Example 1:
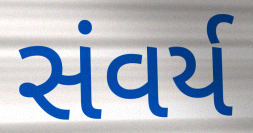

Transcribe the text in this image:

સંવર્ય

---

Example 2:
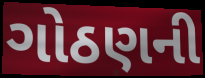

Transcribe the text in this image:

ગોઠણની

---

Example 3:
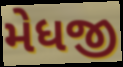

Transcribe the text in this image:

મેધજી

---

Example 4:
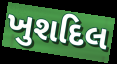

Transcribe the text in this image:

ખુશદિલ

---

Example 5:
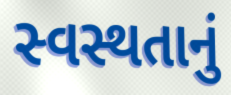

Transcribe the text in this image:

સ્વસ્થતાનું